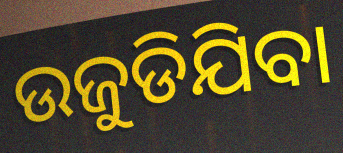
ଉଜୁଡିଯିବା